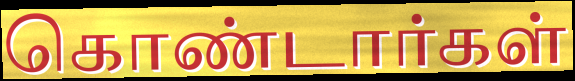
கொண்டார்கள்